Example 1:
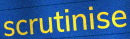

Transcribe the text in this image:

scrutinise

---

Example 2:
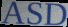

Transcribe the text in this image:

ASD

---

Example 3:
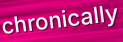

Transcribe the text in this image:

chronically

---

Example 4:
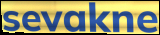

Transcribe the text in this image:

sevakne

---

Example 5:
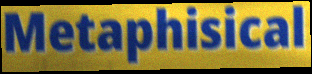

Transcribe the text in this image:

Metaphisical